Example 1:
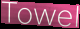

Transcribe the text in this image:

Towel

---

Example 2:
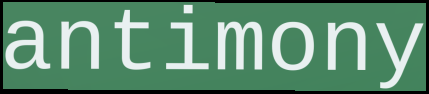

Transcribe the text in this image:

antimony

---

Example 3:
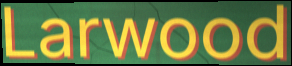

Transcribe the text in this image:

Larwood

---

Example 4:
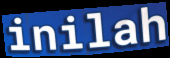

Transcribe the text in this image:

inilah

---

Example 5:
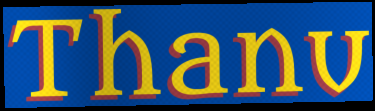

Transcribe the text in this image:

Thanu